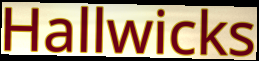
Hallwicks